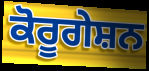
ਕੋਰੂਗੇਸ਼ਨ